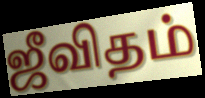
ஜீவிதம்